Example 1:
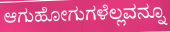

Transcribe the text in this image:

ಆಗುಹೋಗುಗಳೆಲ್ಲವನ್ನೂ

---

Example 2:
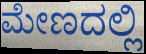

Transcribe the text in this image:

ಮೇಣದಲ್ಲಿ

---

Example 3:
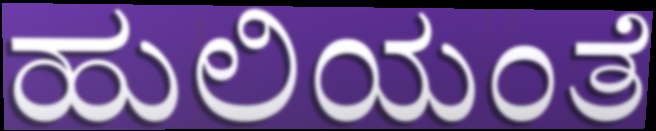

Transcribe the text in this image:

ಹುಲಿಯಂತೆ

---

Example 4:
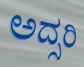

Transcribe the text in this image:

ಅದ್ಸರಿ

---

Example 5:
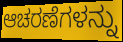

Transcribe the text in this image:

ಆಚರಣೆಗಳನ್ನು